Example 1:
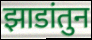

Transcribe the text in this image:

झाडांतुन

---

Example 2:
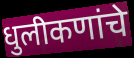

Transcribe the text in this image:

धुलीकणांचे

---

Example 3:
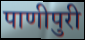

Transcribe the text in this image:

पाणीपुरी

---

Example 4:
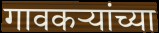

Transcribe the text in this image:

गावकर्‍यांच्या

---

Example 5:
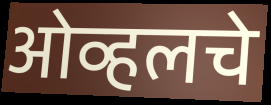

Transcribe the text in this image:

ओव्हलचे